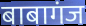
बाबागंज